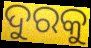
ଦୁରକୁ